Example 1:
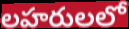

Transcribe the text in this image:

లహరులలో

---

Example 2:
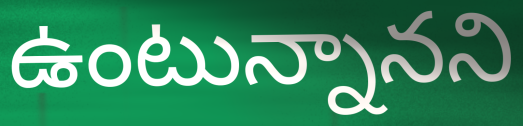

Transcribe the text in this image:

ఉంటున్నానని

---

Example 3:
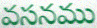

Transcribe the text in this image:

వసనము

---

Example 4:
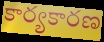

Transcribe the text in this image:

కార్యకారణ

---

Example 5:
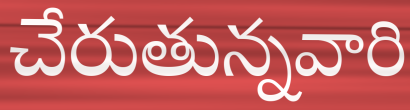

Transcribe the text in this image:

చేరుతున్నవారి